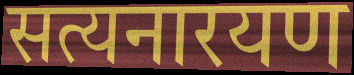
सत्यनारयण